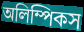
অলিম্পিকস